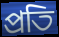
প্রতি